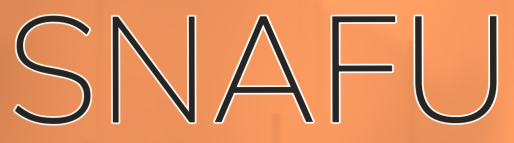
SNAFU